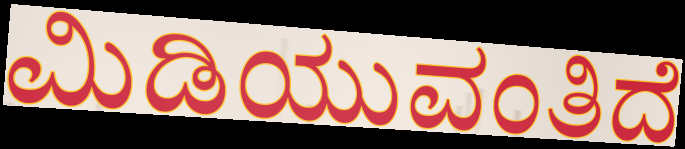
ಮಿಡಿಯುವಂತಿದೆ